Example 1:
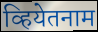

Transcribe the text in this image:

व्हियेतनाम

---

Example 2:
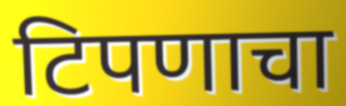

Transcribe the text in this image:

टिपणाचा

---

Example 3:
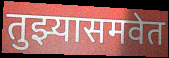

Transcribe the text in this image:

तुझ्यासमवेत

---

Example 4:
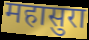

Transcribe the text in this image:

महासुरा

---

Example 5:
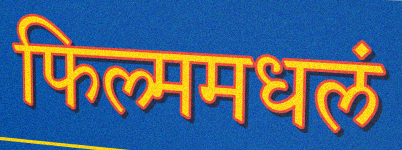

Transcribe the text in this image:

फिल्ममधलं